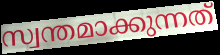
സ്വന്തമാക്കുന്നത്